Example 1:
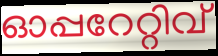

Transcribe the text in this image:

ഓപ്പറേറ്റിവ്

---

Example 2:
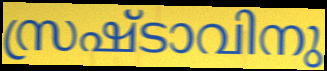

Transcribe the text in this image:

സ്രഷ്ടാവിനു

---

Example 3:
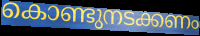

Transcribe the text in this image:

കൊണ്ടുനടക്കണം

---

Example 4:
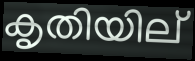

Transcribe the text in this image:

കൃതിയില്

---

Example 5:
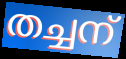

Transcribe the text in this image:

തച്ചന്